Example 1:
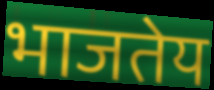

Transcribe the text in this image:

भाजतेय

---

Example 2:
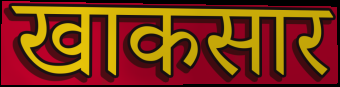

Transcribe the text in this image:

खाकसार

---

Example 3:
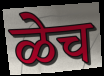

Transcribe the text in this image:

ळेच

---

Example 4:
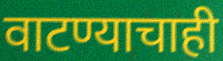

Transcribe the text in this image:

वाटण्याचाही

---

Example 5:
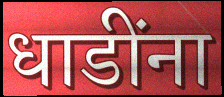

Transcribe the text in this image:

धाडींना